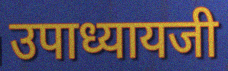
उपाध्यायजी